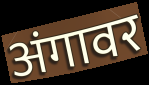
अंगावर